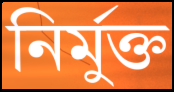
নির্মুক্ত